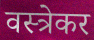
वस्त्रेकर